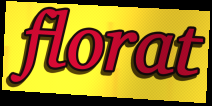
florat